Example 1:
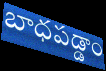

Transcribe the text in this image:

బాధపడ్డాం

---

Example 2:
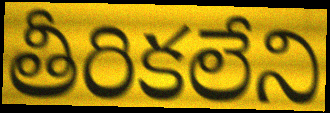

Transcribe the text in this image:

తీరికలేని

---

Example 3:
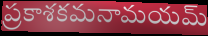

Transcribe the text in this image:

ప్రకాశకమనామయమ్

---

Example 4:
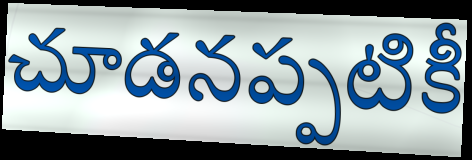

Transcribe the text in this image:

చూడనప్పటికీ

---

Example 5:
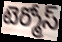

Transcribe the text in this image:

టెర్మోస్